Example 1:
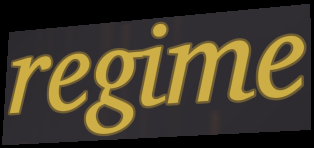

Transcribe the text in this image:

regime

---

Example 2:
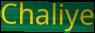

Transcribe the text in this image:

Chaliye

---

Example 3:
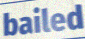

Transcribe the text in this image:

bailed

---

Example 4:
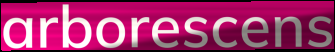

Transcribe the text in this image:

arborescens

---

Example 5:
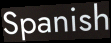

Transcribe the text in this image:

Spanish